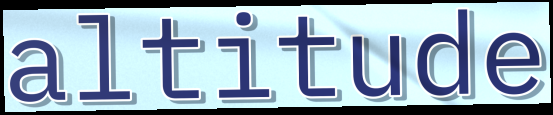
altitude